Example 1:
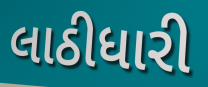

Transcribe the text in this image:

લાઠીધારી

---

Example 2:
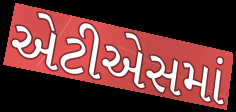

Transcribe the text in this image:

એટીએસમાં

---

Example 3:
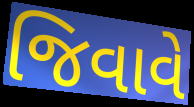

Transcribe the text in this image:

જિવાવે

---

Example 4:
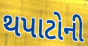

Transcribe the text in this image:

થપાટોની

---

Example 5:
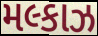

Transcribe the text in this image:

મલ્કાઝ